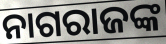
ନାଗରାଜଙ୍କ